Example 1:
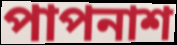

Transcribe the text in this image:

পাপনাশ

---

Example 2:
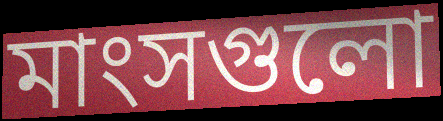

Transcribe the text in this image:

মাংসগুলো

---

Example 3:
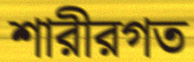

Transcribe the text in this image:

শারীরগত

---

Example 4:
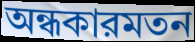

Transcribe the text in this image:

অন্ধকারমতন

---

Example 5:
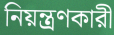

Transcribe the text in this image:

নিয়ন্ত্রণকারী